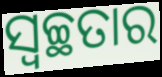
ସ୍ଵଚ୍ଛତାର